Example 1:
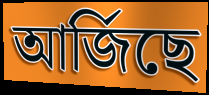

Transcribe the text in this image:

আৰ্জিছে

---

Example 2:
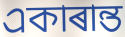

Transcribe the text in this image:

একাৰান্ত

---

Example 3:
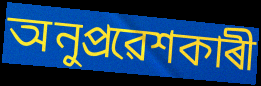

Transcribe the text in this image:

অনুপ্ৰৱেশকাৰী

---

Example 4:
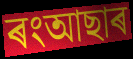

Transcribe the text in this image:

ৰংআছাৰ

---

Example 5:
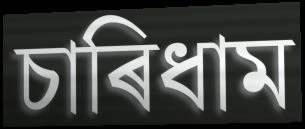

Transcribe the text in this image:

চাৰিধাম